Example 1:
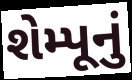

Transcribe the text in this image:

શેમ્પૂનું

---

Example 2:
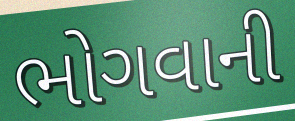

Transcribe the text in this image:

ભોગવાની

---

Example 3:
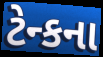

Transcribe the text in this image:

ટેન્કના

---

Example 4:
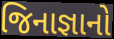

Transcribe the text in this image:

જિનાજ્ઞાનો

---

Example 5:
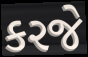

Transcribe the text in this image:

કરજે